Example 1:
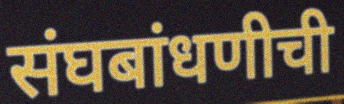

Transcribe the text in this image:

संघबांधणीची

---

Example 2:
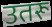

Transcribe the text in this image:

उतरू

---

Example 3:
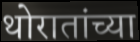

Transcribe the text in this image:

थोरातांच्या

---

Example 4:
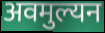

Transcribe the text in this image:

अवमुल्यन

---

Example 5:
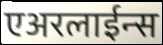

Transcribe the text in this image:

एअरलाईन्स